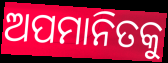
ଅପମାନିତକୁ